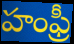
హంఫ్రీ